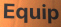
Equip